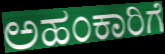
ಅಹಂಕಾರಿಗೆ